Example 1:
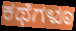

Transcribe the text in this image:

ಕಥೆಗಳೂ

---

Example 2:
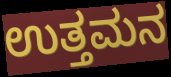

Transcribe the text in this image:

ಉತ್ತಮನ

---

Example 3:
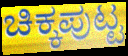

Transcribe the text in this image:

ಚಿಕ್ಕಪುಟ್ಟ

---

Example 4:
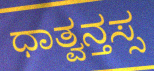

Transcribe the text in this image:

ಧಾತ್ವನ್ತಸ್ಸ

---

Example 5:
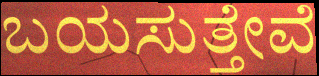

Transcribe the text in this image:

ಬಯಸುತ್ತೇವೆ